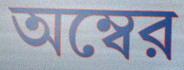
অম্বের